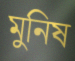
মুনিষ